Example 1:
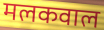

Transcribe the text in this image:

मलकवाल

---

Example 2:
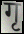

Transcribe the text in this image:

गृ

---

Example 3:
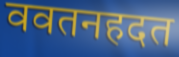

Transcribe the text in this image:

ववतनहदत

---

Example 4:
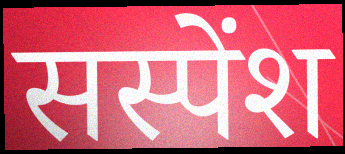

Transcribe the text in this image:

सस्पेंश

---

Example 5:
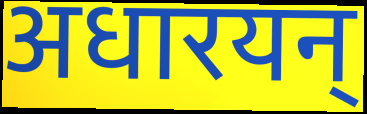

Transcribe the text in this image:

अधारयन्